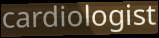
cardiologist